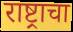
राष्ट्राचा